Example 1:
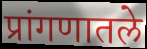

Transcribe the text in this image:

प्रांगणातले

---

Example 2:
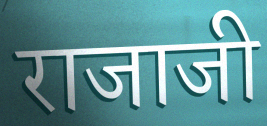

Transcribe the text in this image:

राजाजी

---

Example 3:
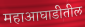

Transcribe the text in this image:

महाआघाडीतील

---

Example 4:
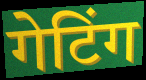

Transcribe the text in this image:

गेटिंग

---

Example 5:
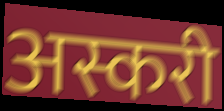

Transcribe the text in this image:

अस्करी